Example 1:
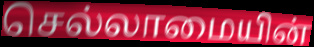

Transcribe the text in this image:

செல்லாமையின்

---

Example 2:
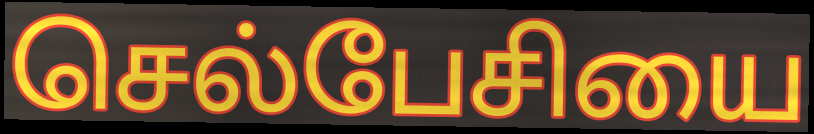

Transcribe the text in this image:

செல்பேசியை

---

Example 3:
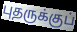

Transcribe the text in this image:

புதருக்குப்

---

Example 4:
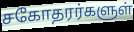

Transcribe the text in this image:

சகோதரர்களுள்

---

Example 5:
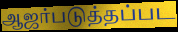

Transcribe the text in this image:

ஆஜர்படுத்தப்பட